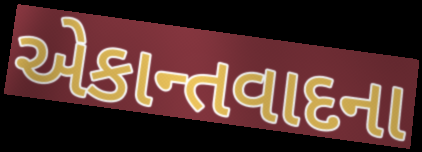
એકાન્તવાદના